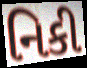
નિકી